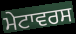
ਮੇਟਾਵਰਸ